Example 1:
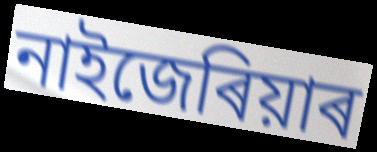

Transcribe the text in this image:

নাইজেৰিয়াৰ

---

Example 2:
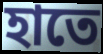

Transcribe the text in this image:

হাতে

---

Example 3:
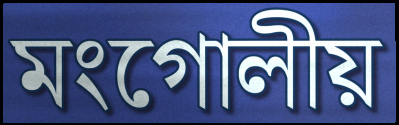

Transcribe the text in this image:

মংগোলীয়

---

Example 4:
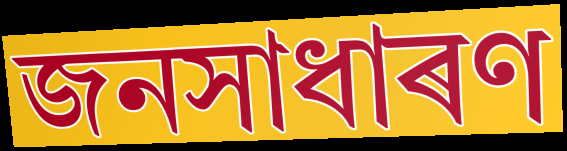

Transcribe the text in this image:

জনসাধাৰণ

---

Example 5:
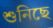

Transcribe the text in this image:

শুনিছে